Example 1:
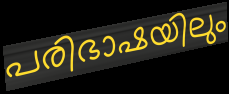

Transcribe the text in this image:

പരിഭാഷയിലും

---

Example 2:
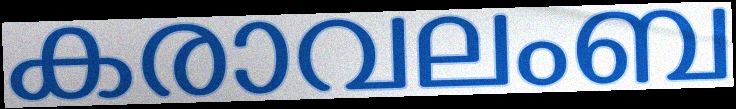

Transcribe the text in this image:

കരാവലംബ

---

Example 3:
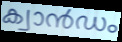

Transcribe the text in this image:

ക്വാൻഡം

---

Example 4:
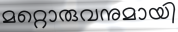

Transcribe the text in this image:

മറ്റൊരുവനുമായി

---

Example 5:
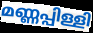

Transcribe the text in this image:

മണ്ണപ്പിള്ളി